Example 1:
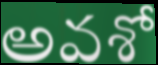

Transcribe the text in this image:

అవశో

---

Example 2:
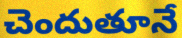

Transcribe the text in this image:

చెందుతూనే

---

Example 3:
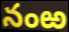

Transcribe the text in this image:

నంఱ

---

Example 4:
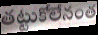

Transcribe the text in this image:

తట్టుకోలేనంత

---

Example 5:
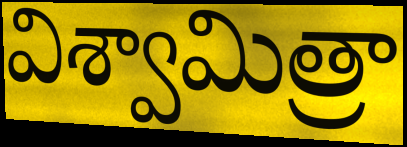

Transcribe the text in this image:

విశ్వామిత్రా